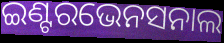
ଇଣ୍ଟରଭେନସନାଲ